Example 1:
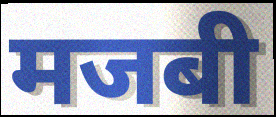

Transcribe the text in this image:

मजबी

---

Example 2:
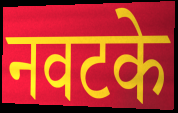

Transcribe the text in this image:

नवटके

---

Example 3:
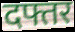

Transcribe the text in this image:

दफ्तर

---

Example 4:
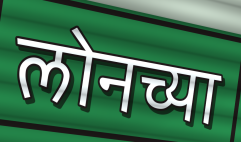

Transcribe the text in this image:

लोनच्या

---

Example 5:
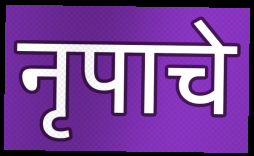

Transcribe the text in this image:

नृपाचे